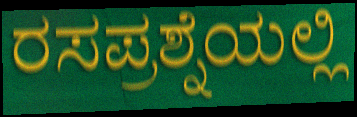
ರಸಪ್ರಶ್ನೆಯಲ್ಲಿ